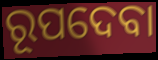
ରୂପଦେବା